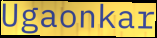
Ugaonkar